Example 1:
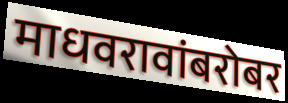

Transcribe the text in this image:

माधवरावांबरोबर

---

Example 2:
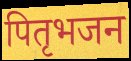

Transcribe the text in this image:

पितृभजन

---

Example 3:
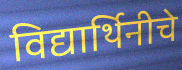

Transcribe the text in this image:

विद्यार्थिनीचे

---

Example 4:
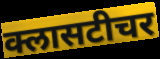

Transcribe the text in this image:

क्लासटीचर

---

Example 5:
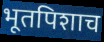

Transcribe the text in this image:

भूतपिशाच